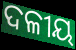
ଦଳୀୟ